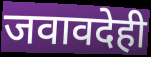
जवावदेही